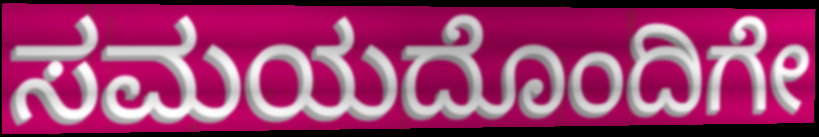
ಸಮಯದೊಂದಿಗೇ